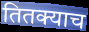
तितक्‍याच